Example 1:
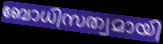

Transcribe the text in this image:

ബോധിസത്വമായി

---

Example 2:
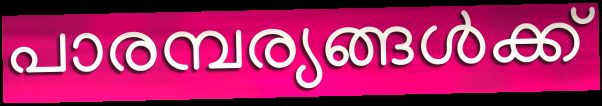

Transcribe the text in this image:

പാരമ്പര്യങ്ങൾക്ക്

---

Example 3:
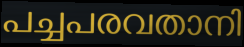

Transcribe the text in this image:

പച്ചപരവതാനി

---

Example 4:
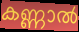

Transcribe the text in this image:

കണ്ണാൽ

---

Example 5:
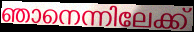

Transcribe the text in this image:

ഞാനെന്നിലേക്ക്